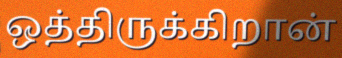
ஒத்திருக்கிறான்